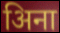
अिना